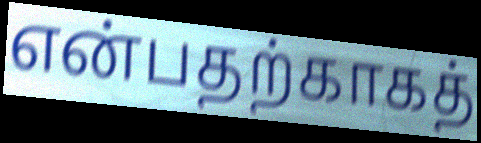
என்பதற்காகத்